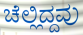
ಚೆಲ್ಲಿದ್ದವು